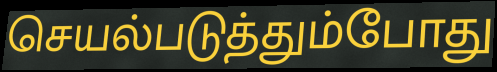
செயல்படுத்தும்போது